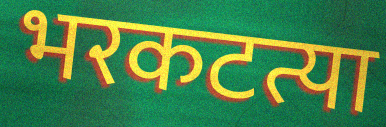
भरकटत्या